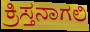
ಕ್ರಿಸ್ತನಾಗಲಿ